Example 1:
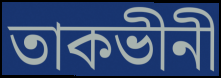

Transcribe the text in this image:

তাকভীনী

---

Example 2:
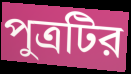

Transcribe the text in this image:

পুত্রটির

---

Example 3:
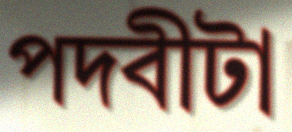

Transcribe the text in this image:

পদবীটা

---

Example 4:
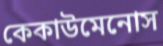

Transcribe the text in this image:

কেকাউমেনোস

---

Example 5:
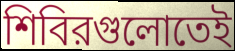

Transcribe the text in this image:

শিবিরগুলোতেই